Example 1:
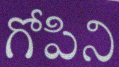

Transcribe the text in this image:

గోపిని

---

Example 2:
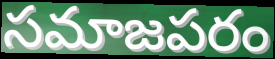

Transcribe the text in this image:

సమాజపరం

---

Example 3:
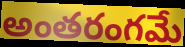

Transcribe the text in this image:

అంతరంగమే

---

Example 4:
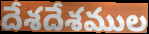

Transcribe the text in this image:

దేశదేశముల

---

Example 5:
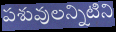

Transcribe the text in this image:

పశువులన్నిటిని